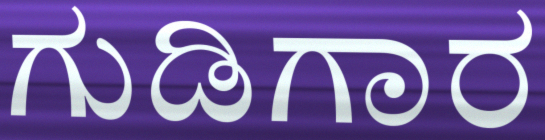
ಗುಡಿಗಾರ